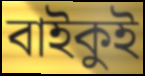
বাইকুই